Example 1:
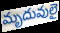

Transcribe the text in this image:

మృదువులై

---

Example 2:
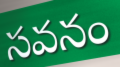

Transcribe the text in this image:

సవనం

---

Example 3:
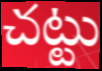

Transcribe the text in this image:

చట్టు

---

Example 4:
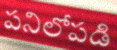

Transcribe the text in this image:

పనిలోపడి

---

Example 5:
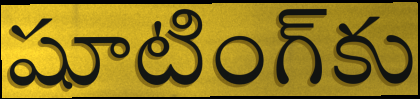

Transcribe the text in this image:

షూటింగ్‌కు